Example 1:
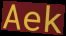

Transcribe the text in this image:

Aek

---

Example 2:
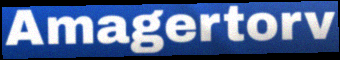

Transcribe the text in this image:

Amagertorv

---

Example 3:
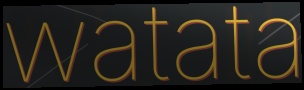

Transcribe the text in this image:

watata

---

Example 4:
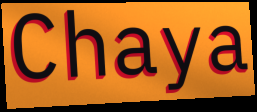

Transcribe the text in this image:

Chaya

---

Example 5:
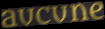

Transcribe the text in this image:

aucune